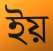
ইয়